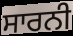
ਸਾਰਨੀ